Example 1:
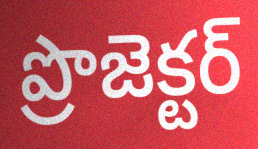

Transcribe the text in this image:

ప్రొజెక్టర్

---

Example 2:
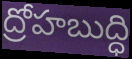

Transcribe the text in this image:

ద్రోహబుద్ధి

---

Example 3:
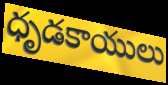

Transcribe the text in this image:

ధృడకాయులు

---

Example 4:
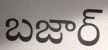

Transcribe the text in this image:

బజార్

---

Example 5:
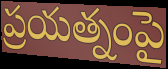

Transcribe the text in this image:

ప్రయత్నంపై